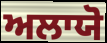
ਅਲਾਯੋ